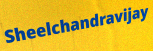
Sheelchandravijay